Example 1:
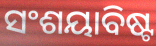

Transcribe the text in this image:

ସଂଶୟାବିଷ୍ଟ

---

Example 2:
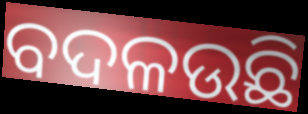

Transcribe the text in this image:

ବଦଳଉଛି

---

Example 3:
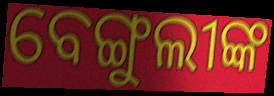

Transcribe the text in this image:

ବେଙ୍ଗୁଲୀଙ୍କ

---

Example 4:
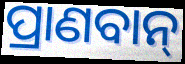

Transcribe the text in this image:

ପ୍ରାଣବାନ୍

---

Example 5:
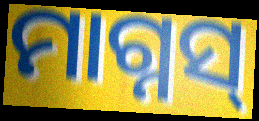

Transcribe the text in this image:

ମାଗ୍ନସ୍